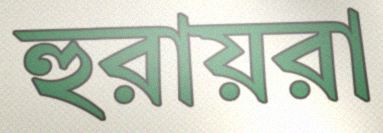
হুরায়রা